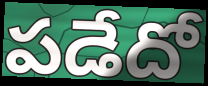
పడేదో